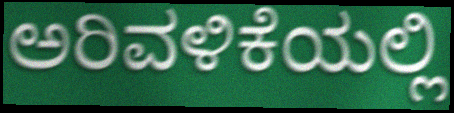
ಅರಿವಳಿಕೆಯಲ್ಲಿ